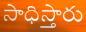
సాధిస్తారు